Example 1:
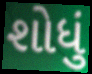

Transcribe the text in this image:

શોધું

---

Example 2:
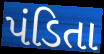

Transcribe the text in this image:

પંડિતા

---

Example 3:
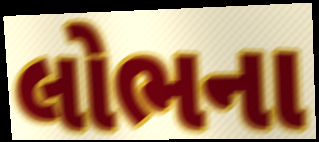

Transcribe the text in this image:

લોભના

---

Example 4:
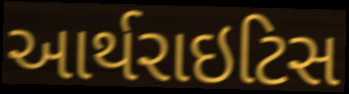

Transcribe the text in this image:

આર્થરાઇટિસ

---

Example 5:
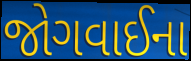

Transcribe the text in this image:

જોગવાઈના